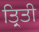
ਤ੍ਰਿਤੀ